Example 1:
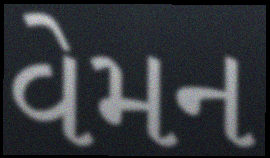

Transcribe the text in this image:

વેમન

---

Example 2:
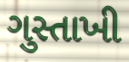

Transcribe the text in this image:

ગુસ્તાખી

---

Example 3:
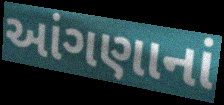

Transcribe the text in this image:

આંગણાનાં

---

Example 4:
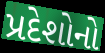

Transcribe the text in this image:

પ્રદેશોનો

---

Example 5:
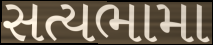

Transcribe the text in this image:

સત્યભામા